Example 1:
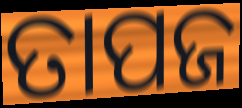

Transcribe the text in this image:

ତାପଜ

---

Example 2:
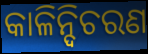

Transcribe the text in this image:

କାଳିନ୍ଦିଚରଣ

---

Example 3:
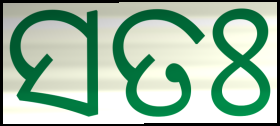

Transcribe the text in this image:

ସତଃ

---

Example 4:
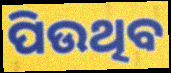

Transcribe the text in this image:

ପିଉଥିବ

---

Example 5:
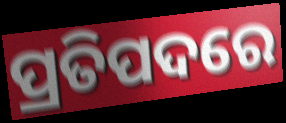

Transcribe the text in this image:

ପ୍ରତିପଦରେ